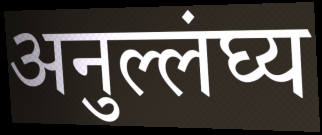
अनुल्लंघ्य